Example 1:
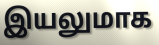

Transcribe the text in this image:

இயலுமாக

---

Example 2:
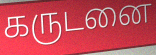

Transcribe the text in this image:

கருடனை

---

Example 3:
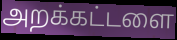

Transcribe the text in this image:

அறக்கட்டளை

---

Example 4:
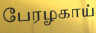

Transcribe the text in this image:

பேரழகாய்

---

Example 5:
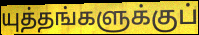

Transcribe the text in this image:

யுத்தங்களுக்குப்